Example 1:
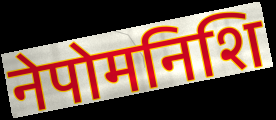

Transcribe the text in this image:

नेपोमनिशि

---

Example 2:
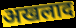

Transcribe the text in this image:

अखलाद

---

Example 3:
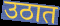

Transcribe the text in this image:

उठात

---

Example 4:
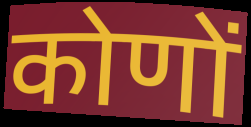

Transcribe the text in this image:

कोणों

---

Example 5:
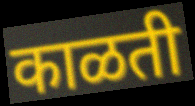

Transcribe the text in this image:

काळती